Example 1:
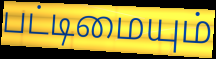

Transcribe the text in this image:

பட்டிமையும்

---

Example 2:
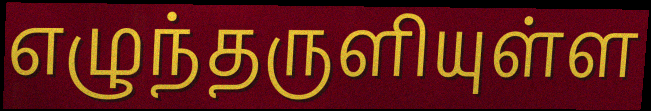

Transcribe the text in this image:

எழுந்தருளியுள்ள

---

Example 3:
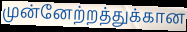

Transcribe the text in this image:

முன்னேற்றத்துக்கான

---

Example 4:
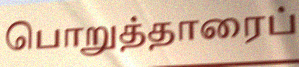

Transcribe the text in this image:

பொறுத்தாரைப்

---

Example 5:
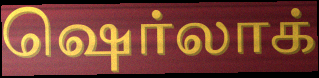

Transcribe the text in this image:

ஷெர்லாக்